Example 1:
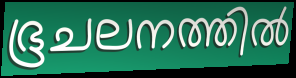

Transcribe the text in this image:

ഭൂചലനത്തിൽ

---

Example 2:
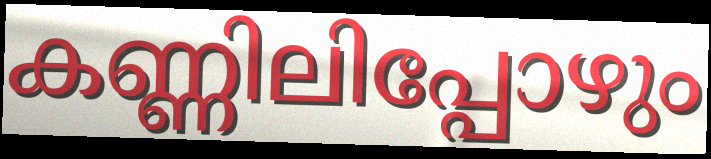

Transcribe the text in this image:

കണ്ണിലിപ്പോഴും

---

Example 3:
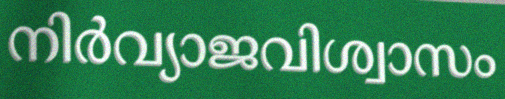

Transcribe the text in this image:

നിർവ്യാജവിശ്വാസം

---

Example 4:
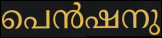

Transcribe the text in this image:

പെൻഷനു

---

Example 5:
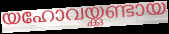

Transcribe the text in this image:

യഹോവയ്ക്കുണ്ടായ